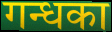
गन्धका